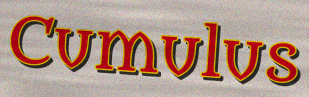
Cumulus